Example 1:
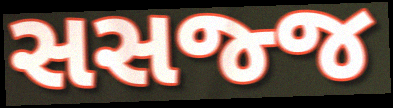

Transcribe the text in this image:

સસજ્જ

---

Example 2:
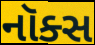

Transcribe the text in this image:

નૉક્સ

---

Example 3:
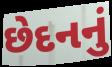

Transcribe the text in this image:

છેદનનું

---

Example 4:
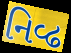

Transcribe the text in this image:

નિવ્ઢ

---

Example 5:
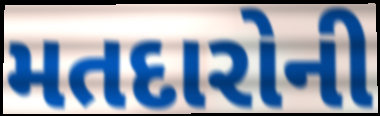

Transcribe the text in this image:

મતદારોની